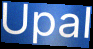
Upal